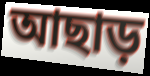
আছাড়